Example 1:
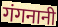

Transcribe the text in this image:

गंगनानी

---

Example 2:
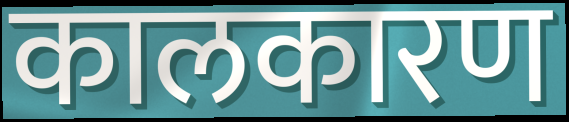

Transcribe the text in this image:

कालकारण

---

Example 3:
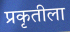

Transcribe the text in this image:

प्रकृतीला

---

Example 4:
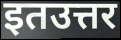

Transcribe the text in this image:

इतउत्तर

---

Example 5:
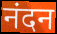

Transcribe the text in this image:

नंदन